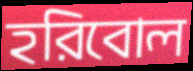
হরিবোল